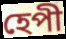
হেপী